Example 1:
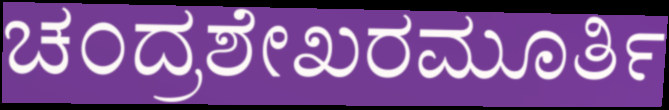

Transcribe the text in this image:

ಚಂದ್ರಶೇಖರಮೂರ್ತಿ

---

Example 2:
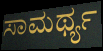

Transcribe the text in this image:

ಸಾಮರ್ಥ್ಯ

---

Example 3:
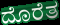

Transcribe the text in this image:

ದೊರೆತ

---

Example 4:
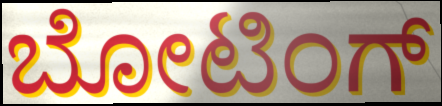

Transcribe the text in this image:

ಬೋಟಿಂಗ್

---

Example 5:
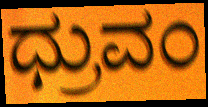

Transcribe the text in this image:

ಧ್ರುವಂ